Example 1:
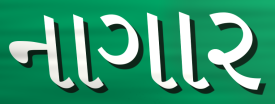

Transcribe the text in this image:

નાગાર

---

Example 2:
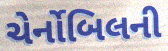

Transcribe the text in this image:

ચેર્નોબિલની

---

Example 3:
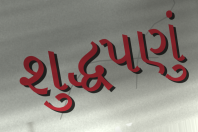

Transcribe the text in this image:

શુદ્ધપણું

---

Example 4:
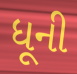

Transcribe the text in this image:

ધૂની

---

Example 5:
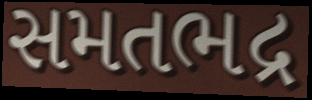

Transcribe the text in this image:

સમતભદ્ર